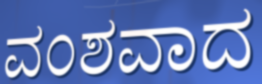
ವಂಶವಾದ